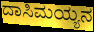
ದಾಸಿಮಯ್ಯನ